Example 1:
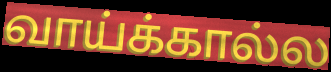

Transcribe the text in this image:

வாய்க்கால்ல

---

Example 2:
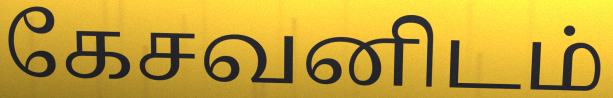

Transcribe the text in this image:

கேசவனிடம்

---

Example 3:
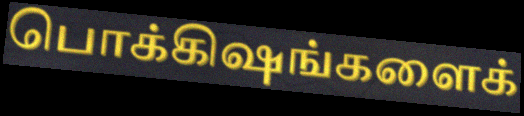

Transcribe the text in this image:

பொக்கிஷங்களைக்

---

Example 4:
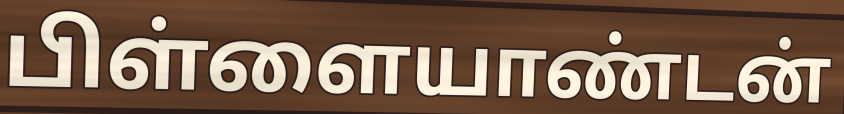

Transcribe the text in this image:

பிள்ளையாண்டன்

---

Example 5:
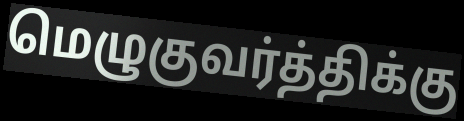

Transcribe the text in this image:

மெழுகுவர்த்திக்கு